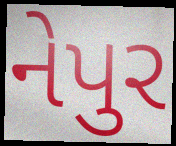
નેપુર